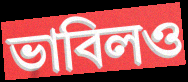
ভাবিলও